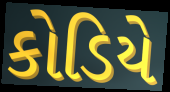
કોડિયે